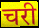
चरी